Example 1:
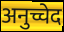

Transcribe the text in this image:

अनुच्चेद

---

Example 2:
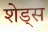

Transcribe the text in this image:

शेड्स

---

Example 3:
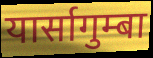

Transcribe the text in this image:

यार्सागुम्बा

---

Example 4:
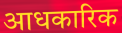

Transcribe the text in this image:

आधकारिक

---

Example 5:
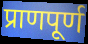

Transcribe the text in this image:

प्राणपूर्ण